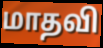
மாதவி